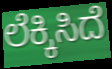
ಲೆಕ್ಕಿಸಿದೆ